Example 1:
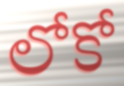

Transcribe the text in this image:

లోకో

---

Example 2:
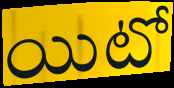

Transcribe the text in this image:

యిటో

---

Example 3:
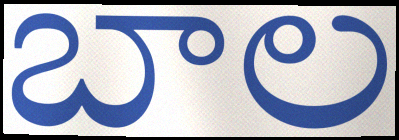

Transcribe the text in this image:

బాల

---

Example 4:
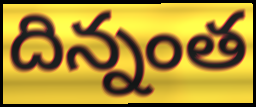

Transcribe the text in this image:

దిన్నంత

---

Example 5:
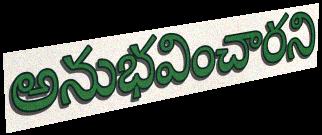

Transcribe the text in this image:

అనుభవించారని